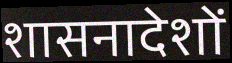
शासनादेशों